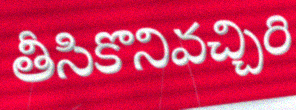
తీసికొనివచ్చిరి